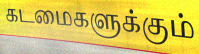
கடமைகளுக்கும்